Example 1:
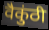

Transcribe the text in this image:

वैकुंठी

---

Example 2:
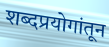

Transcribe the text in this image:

शब्दप्रयोगांतून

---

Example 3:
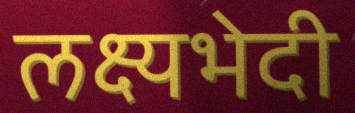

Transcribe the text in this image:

लक्ष्यभेदी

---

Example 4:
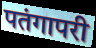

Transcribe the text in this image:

पतंगापरी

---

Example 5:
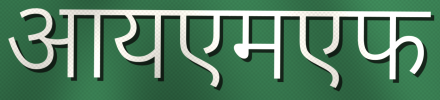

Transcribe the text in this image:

आयएमएफ